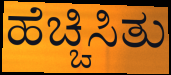
ಹೆಚ್ಚಿಸಿತು